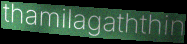
thamilagaththin